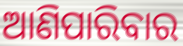
ଆଣିପାରିବାର